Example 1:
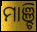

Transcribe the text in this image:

ମାଞ୍ଚି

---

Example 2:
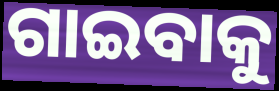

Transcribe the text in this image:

ଗାଇବାକୁ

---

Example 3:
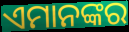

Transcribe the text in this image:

ଏମାନଙ୍କର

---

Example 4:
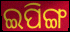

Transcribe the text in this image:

ଇପିଙ୍ଗ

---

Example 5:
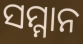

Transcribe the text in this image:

ସମ୍ମାନ